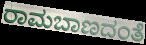
ರಾಮಬಾಣದಂತೆ